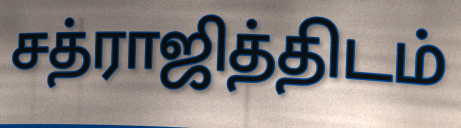
சத்ராஜித்திடம்